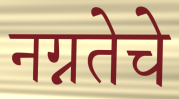
नग्नतेचे